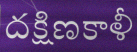
దక్షిణకాళీ